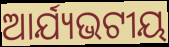
ଆର୍ଯ୍ୟଭଟୀୟ